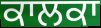
ਕਾਲਕਾ